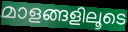
മാളങ്ങളിലൂടെ